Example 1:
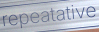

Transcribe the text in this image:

repeatative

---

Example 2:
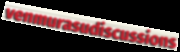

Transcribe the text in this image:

venmurasudiscussions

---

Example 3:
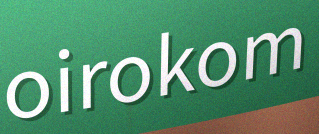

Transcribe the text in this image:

oirokom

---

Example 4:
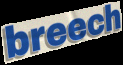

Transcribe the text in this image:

breech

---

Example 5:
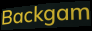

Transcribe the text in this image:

Backgam